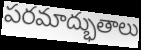
పరమాద్భుతాలు